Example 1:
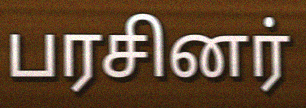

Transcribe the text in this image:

பரசினர்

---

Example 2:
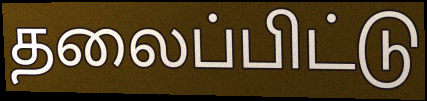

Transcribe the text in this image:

தலைப்பிட்டு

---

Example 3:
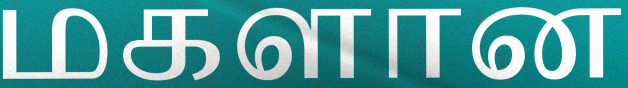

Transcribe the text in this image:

மகளான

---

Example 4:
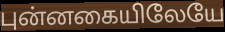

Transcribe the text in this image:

புன்னகையிலேயே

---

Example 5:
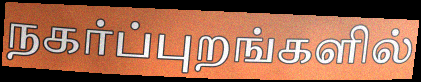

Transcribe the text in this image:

நகர்ப்புறங்களில்